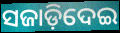
ସଜାଡ଼ିଦେଇ